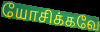
யோசிக்கவே